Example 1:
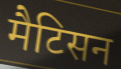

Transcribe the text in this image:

मैटिसन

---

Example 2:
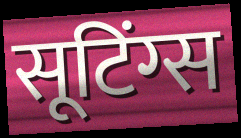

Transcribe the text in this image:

सूटिंग्स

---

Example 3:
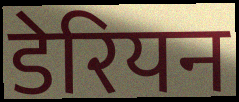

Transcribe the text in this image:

डेरियन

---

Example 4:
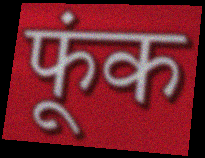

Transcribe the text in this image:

फूंक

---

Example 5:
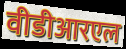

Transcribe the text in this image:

वीडीआरएल